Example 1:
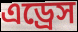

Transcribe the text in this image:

এড্রেস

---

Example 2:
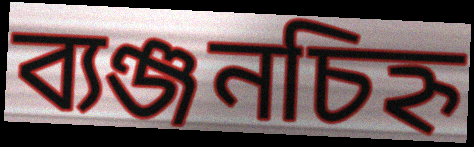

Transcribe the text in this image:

ব্যঞ্জনচিহ্ন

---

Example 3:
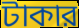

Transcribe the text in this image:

টাকার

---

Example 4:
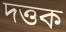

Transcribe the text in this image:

দত্তক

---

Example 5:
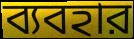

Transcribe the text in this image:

ব্যবহার